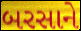
બરસાને